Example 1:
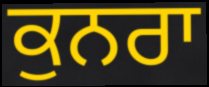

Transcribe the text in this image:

ਕੁਨਰਾ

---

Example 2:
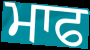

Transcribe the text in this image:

ਮਾਫ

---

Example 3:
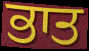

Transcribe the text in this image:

ਭਾਤ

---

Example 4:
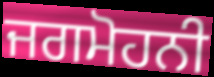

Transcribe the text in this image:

ਜਗਮੋਹਨੀ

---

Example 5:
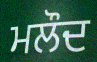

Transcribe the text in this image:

ਮਲੌਦ